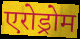
एरोड्रोम